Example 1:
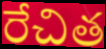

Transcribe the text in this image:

రేచిత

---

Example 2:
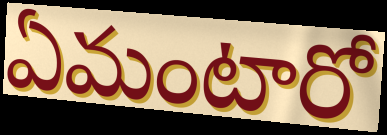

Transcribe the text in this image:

ఏమంటారో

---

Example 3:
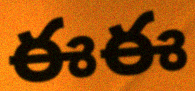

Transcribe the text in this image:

ఈఈ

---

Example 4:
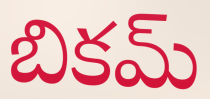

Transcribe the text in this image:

బికమ్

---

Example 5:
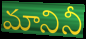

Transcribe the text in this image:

మానినీ